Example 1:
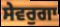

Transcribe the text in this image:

ਸੇਵਰੁਗਾ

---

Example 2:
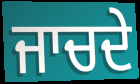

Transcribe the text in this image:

ਜਾਚਦੇ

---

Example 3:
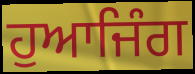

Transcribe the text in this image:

ਹੁਆਜਿੰਗ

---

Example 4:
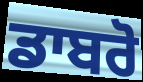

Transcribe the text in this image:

ਡਾਬਰੋ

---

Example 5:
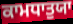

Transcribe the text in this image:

ਕਾਮਧਾਤੁਯਾ